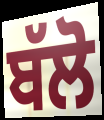
ਬੱਲੋ